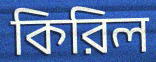
কিরিল